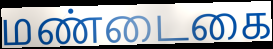
மண்டைகை